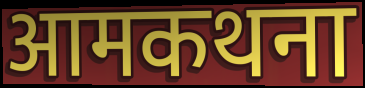
आमकथना